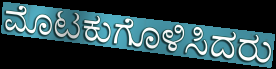
ಮೊಟಕುಗೊಳಿಸಿದರು